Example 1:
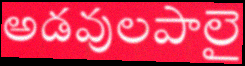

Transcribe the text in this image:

అడవులపాలై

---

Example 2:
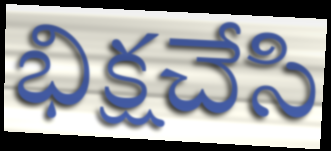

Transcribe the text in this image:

భిక్షచేసి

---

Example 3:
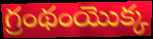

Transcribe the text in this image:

గ్రంథంయొక్క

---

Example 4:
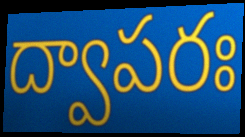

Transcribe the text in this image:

ద్వాపరః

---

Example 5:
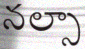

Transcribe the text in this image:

నల్సా